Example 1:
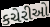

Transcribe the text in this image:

કચેરીઓ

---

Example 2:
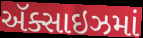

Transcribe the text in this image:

ઍક્સાઇઝમાં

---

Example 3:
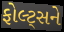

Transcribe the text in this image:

ફોલ્ટ્સને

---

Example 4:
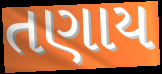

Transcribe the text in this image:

તણાય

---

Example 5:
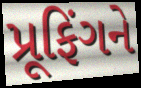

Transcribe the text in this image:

પ્રૂફિંગને